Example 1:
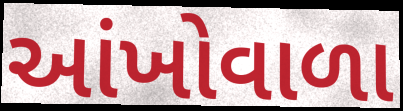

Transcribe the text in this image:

આંખોવાળા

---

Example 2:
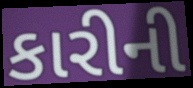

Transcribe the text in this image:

કારીની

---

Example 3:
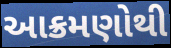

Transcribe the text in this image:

આક્રમણોથી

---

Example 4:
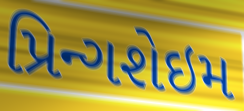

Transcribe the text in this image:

પ્રિન્ગશેઇમ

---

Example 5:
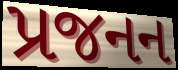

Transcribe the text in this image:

પ્રજનન